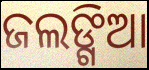
ଜଲଙ୍ଗିଆ